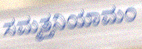
ಸಮ್ಮತ್ತನಿಯಾಮಂ